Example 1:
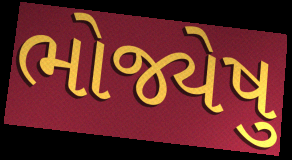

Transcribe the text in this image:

ભોજ્યેષુ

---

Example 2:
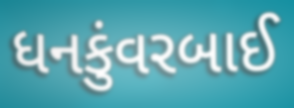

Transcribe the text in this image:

ધનકુંવરબાઈ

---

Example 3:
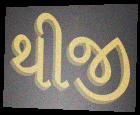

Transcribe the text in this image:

થીજી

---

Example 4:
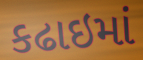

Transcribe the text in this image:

કઢાઇમાં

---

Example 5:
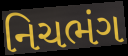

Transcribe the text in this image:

નિચભંગ